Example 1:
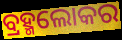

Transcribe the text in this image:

ବ୍ରହ୍ମଲୋକର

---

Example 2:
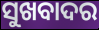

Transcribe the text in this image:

ସୁଖବାଦର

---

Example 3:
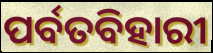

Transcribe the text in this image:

ପର୍ବତବିହାରୀ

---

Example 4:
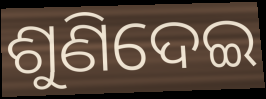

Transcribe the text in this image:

ଶୁଣିଦେଇ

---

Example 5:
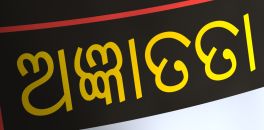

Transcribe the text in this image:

ଅଜ୍ଞାତତା